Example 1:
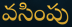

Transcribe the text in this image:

వసింపు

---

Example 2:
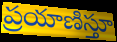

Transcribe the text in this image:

ప్రయాణిస్తూ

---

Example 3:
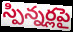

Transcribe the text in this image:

స్పిన్నర్లపై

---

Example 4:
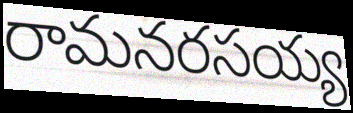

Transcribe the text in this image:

రామనరసయ్య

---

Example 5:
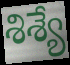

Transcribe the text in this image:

శిశ్యే